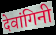
देवांगिनी